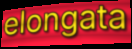
elongata